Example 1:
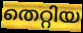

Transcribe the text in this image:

തെറ്റിയ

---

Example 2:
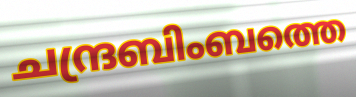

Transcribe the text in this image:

ചന്ദ്രബിംബത്തെ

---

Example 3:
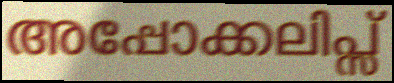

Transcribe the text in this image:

അപ്പോക്കലിപ്സ്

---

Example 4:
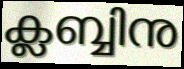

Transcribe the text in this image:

ക്ലബ്ബിനു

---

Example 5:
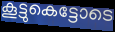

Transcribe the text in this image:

കൂട്ടുകെട്ടോടെ